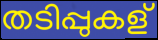
തടിപ്പുകള്